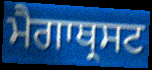
ਮੈਗਾਥ੍ਰਸਟ